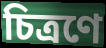
চিত্ৰণে